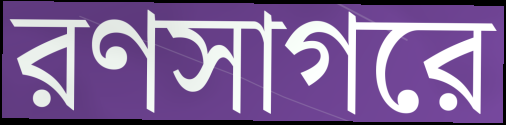
রণসাগরে